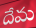
దేమ